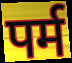
पर्म